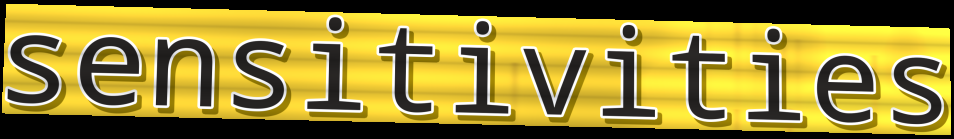
sensitivities